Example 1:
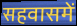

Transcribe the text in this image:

सहवासमें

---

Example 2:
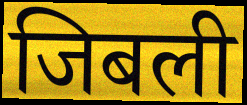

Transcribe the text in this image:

जिबली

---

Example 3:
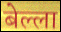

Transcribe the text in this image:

बेल्ला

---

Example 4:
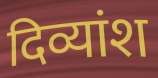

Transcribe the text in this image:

दिव्यांश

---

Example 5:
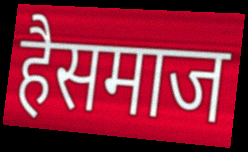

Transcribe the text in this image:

हैसमाज